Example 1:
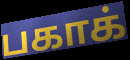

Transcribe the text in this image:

பகாக்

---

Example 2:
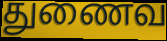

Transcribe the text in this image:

துணைவ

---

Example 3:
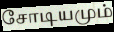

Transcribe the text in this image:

சோடியமும்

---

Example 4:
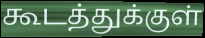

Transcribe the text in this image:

கூடத்துக்குள்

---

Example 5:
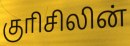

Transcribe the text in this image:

குரிசிலின்